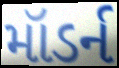
મૉડર્ન